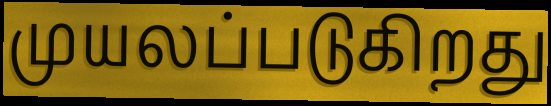
முயலப்படுகிறது